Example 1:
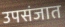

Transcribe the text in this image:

उपसंजात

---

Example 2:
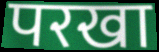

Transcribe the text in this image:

परखा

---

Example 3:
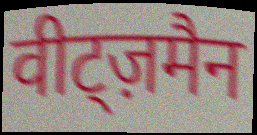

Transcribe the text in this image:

वीट्ज़मैन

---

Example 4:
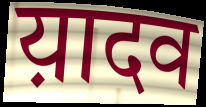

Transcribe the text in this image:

य़ादव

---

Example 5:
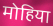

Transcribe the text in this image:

मोहिया